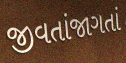
જીવતાંજાગતાં